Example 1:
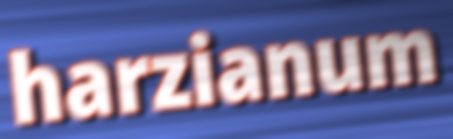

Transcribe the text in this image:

harzianum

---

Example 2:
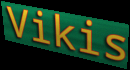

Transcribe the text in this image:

Vikis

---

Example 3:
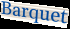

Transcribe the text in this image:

Barquet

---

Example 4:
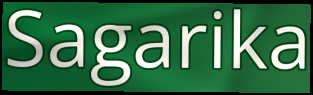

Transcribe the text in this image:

Sagarika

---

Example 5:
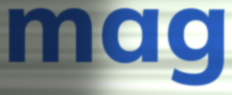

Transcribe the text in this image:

mag